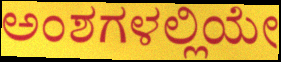
ಅಂಶಗಳಲ್ಲಿಯೇ